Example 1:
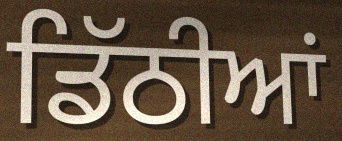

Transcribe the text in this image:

ਡਿੱਠੀਆਂ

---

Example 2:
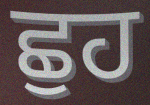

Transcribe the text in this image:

ਛੁਹ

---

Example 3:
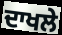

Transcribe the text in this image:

ਦਾਖਲੇ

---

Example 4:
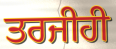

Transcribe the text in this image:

ਤਰਜੀਹੀ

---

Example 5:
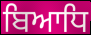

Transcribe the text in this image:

ਬਿਆਧਿ